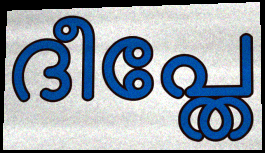
ദീപ്തേ